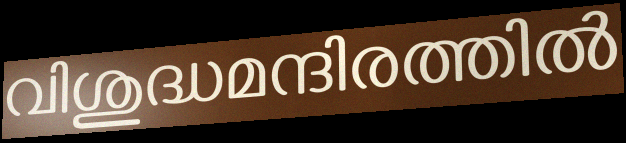
വിശുദ്ധമന്ദിരത്തിൽ